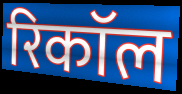
रिकॉल